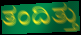
ತಂದಿತ್ತು